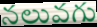
నలువగు